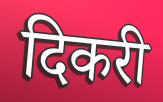
दिकरी